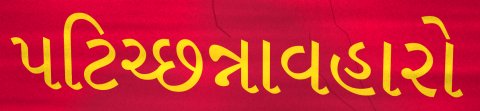
પટિચ્છન્નાવહારો